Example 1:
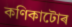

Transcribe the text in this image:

কণিকাটোৰ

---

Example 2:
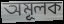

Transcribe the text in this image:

অমূলক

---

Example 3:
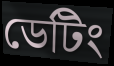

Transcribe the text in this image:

ডেটিং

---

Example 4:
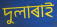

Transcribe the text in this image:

দুলাৰাই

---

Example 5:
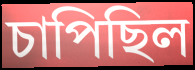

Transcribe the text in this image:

চাপিছিল